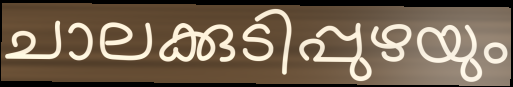
ചാലക്കുടിപ്പുഴയും